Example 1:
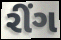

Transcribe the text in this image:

રીંગ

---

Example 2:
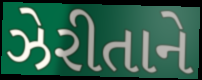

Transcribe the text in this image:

ઝેરીતાને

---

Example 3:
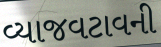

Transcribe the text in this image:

વ્યાજવટાવની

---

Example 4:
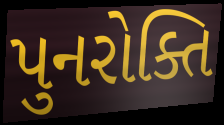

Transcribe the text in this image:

પુનરોક્તિ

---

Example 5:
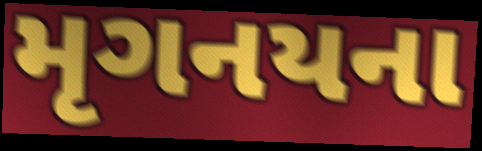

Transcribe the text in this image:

મૃગનયના